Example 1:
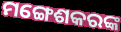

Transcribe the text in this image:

ମଙ୍ଗେଶକରଙ୍କ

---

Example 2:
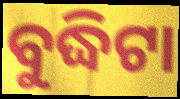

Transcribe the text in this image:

ବୁଦ୍ଧିଟା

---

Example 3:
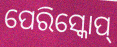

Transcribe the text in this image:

ପେରିସ୍କୋପ୍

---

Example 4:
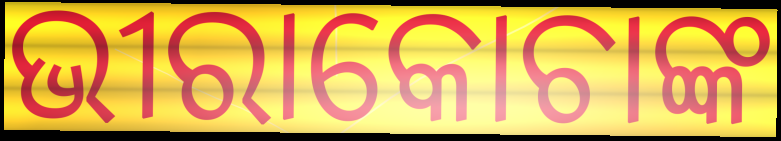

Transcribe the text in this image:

ଭୀରାକୋଚାଙ୍କ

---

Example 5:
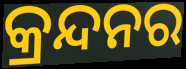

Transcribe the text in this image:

କ୍ରନ୍ଦନର